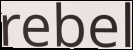
rebel